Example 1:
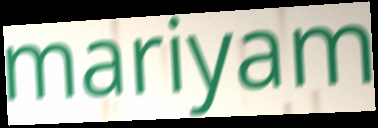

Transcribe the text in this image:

mariyam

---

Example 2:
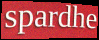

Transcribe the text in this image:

spardhe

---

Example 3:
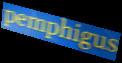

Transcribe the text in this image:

pemphigus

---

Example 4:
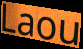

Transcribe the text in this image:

Laou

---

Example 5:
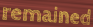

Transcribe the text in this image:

remained